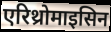
एरिथ्रोमाइसिन